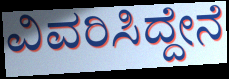
ವಿವರಿಸಿದ್ದೇನೆ